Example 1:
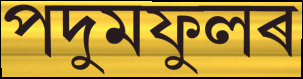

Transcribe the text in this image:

পদুমফুলৰ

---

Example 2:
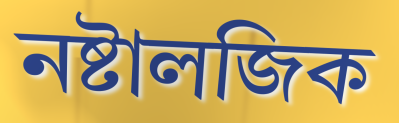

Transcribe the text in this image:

নষ্টালজিক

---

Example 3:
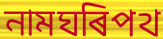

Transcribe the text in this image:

নামঘৰিপথ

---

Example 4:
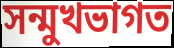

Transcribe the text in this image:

সন্মুখভাগত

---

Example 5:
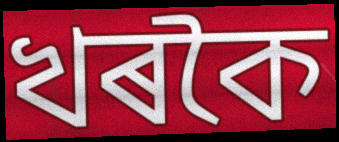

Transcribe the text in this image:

খৰকৈ